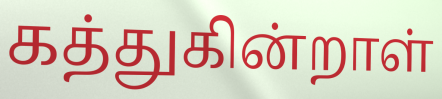
கத்துகின்றாள்